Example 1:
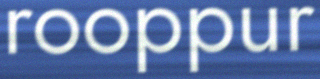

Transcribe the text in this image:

rooppur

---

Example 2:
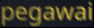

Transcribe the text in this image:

pegawai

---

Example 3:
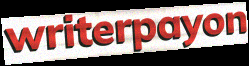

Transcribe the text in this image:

writerpayon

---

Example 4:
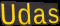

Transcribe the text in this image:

Udas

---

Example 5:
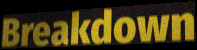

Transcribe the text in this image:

Breakdown